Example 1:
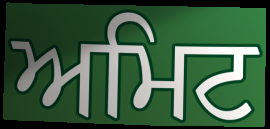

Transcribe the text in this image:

ਅਮਿਟ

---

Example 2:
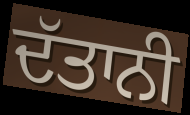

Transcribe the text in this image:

ਦੱਤਾਨੀ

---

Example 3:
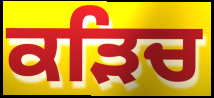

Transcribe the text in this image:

ਕੜਿਚ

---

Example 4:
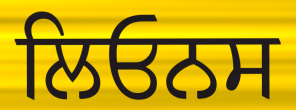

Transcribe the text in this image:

ਲਿਓਨਸ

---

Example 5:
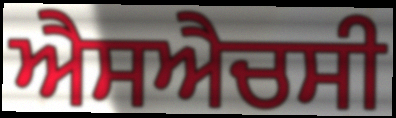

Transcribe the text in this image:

ਐਸਐਚਸੀ